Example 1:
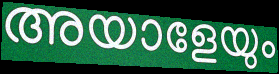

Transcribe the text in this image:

അയാളേയും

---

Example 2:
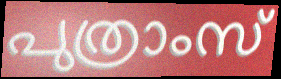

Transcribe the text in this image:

പുത്രാംസ്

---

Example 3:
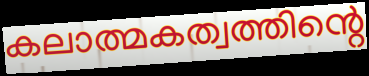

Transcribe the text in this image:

കലാത്മകത്വത്തിന്റെ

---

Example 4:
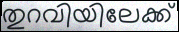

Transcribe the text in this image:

തുറവിയിലേക്ക്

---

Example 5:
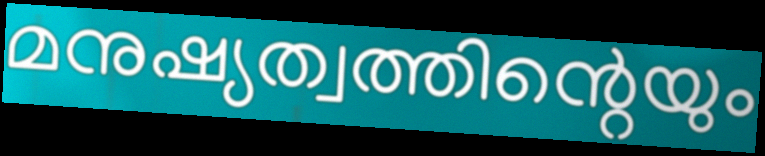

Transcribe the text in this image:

മനുഷ്യത്വത്തിന്റെയും